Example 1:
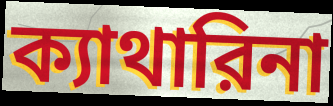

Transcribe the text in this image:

ক্যাথারিনা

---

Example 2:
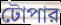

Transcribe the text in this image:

টোপার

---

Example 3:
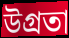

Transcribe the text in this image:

উগ্রতা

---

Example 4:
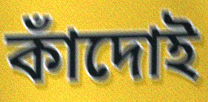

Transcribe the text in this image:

কাঁদোই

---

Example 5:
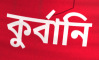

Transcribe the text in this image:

কুর্বানি